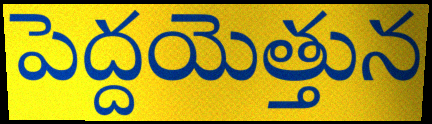
పెద్దయెత్తున